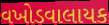
વખોડવાલાયક